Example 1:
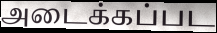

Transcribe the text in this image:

அடைக்கப்பட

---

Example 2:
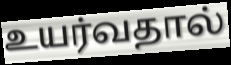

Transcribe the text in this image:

உயர்வதால்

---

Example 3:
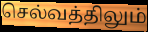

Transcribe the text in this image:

செல்வத்திலும்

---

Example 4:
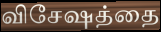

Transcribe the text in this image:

விசேஷத்தை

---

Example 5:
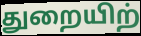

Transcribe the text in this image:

துறையிற்